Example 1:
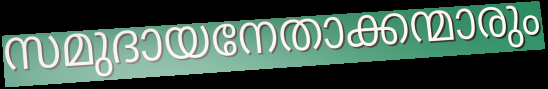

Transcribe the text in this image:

സമുദായനേതാക്കന്മാരും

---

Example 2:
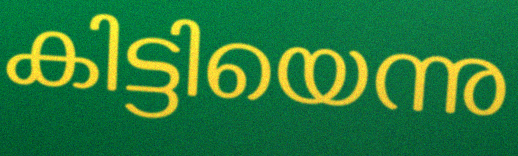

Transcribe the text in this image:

കിട്ടിയെന്നു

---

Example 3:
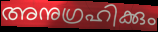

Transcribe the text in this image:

അനുഗ്രഹിക്കും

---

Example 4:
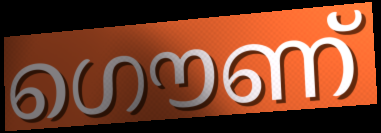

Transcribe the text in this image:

ഗൌണ്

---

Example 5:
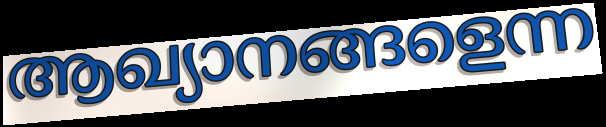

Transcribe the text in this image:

ആഖ്യാനങ്ങളെന്ന